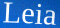
Leia